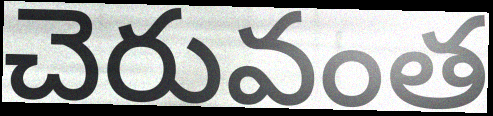
చెరువంత